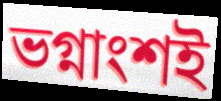
ভগ্নাংশই